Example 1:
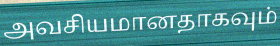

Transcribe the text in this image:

அவசியமானதாகவும்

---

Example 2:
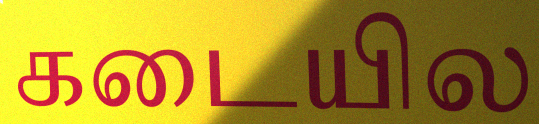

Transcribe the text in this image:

கடையில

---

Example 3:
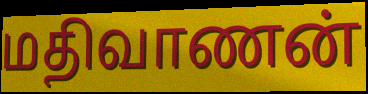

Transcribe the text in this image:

மதிவாணன்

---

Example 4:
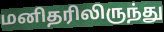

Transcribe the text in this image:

மனிதரிலிருந்து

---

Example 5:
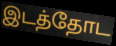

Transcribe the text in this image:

இடத்தோட